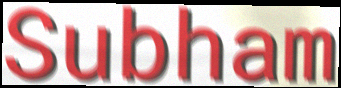
Subham